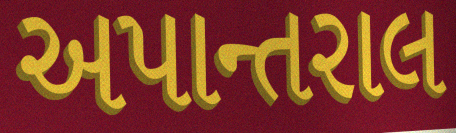
અપાન્તરાલ